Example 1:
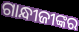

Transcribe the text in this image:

ଗାନ୍ଧୀଜୀଙ୍କର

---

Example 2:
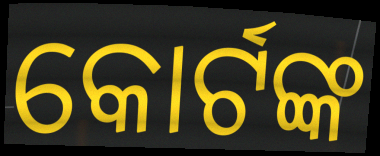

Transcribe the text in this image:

କୋର୍ଟଙ୍କ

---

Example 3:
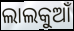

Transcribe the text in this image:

ଲାଲକୁଆଁ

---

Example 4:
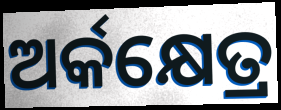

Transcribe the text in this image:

ଅର୍କକ୍ଷେତ୍ର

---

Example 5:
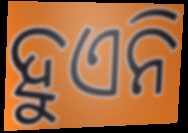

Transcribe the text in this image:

ହୁଏନି